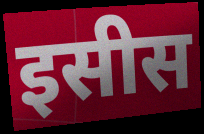
इसीस